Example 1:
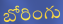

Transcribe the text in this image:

బోరింగు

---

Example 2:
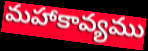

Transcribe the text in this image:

మహాకావ్యము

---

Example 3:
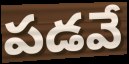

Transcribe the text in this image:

పడవే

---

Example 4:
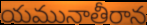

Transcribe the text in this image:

యమునాతీరాన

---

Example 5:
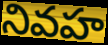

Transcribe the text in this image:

నివహ